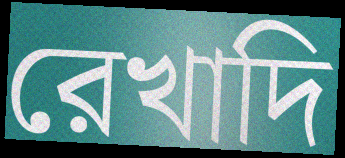
রেখাদি